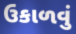
ઉકાળવું